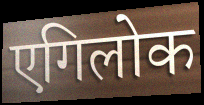
एगिलोक